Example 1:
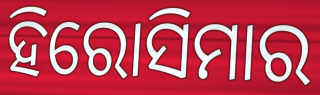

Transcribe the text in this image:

ହିରୋସିମାର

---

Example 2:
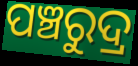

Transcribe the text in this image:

ପଞ୍ଚରୁଦ୍ର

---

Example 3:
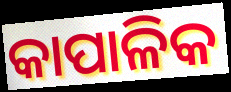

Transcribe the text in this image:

କାପାଳିକ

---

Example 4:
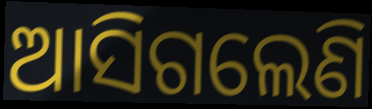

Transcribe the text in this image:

ଆସିଗଲେଣି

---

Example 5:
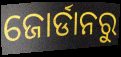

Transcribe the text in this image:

ଜୋର୍ଡାନରୁ